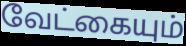
வேட்கையும்